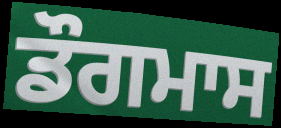
ਡੌਗਮਾਸ